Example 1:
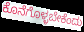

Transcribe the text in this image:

ಕೊನೆಗೊಳ್ಳಬೇಕೆಂದು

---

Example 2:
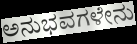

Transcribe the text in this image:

ಅನುಭವಗಳೇನು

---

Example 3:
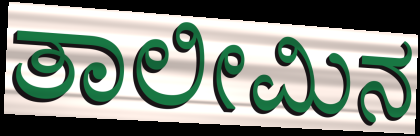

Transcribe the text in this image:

ತಾಲೀಮಿನ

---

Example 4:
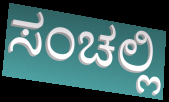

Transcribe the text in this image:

ಸಂಚಲ್ಲಿ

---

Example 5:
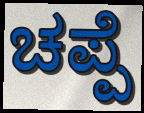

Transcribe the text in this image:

ಚಪ್ಪೆ